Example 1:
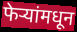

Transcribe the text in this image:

फेऱ्यांमधून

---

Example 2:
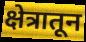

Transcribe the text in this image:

क्षेत्रातून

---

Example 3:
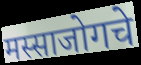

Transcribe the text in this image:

मस्साजोगचे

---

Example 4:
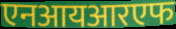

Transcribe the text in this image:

एनआयआरएफ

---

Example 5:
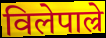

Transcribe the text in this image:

विलेपाल्रे